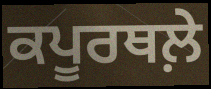
ਕਪੂਰਥਲ਼ੇ